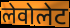
लेवोलेट